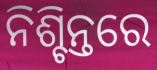
ନିଶ୍ଚିନ୍ତରେ